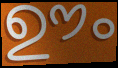
ഊം